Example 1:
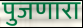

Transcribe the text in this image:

पुजणारा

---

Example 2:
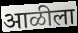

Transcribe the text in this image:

आळीला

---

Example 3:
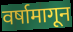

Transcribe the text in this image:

वर्षामागून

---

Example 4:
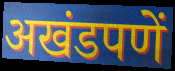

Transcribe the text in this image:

अखंडपणें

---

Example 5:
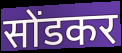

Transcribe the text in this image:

सोंडकर